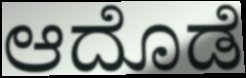
ಆದೊಡೆ